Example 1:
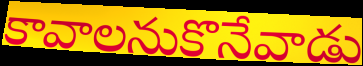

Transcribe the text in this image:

కావాలనుకొనేవాడు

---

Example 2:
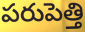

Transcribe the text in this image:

పరుపెత్తి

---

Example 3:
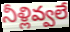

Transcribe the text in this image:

నీళ్లివ్వలే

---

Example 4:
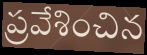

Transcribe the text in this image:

ప్రవేశించిన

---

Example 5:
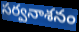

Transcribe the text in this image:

సర్వనాశనం